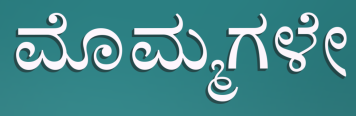
ಮೊಮ್ಮಗಳೇ